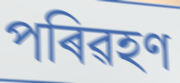
পৰিৱহণ